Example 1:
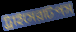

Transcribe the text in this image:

ট্রাইসেরাটপস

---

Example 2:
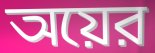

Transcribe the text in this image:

অয়ের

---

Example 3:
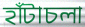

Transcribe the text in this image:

হাঁটাচলা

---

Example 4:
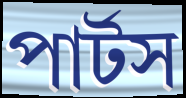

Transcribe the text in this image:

পার্টস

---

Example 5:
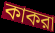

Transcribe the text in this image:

কাকরা